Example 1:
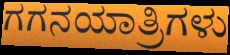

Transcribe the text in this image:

ಗಗನಯಾತ್ರಿಗಳು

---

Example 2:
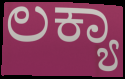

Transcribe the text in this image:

ಲಕ್ಯಾ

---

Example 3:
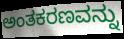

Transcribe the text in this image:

ಅಂತಕರಣವನ್ನು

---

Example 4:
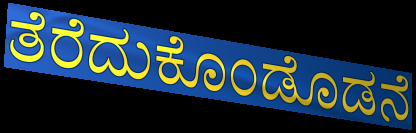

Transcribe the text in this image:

ತೆರೆದುಕೊಂಡೊಡನೆ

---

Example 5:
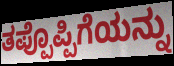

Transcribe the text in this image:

ತಪ್ಪೊಪ್ಪಿಗೆಯನ್ನು